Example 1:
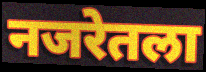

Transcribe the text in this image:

नजरेतला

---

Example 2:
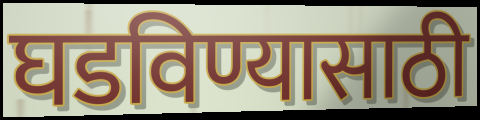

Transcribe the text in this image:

घडविण्यासाठी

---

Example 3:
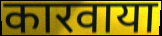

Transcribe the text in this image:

कारवाया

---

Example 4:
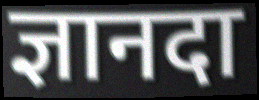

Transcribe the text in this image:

ज्ञानदा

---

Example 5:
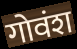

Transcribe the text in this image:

गोवंश